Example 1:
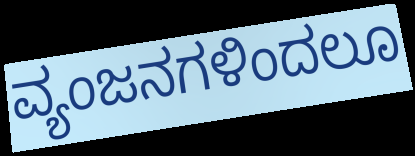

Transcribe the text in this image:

ವ್ಯಂಜನಗಳಿಂದಲೂ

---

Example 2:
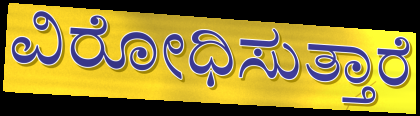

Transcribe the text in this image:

ವಿರೋಧಿಸುತ್ತಾರೆ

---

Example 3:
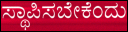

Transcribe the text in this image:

ಸ್ಥಾಪಿಸಬೇಕೆಂದು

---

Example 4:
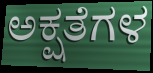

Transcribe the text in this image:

ಅಕ್ಷತೆಗಳ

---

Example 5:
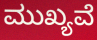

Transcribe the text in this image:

ಮುಖ್ಯವೆ